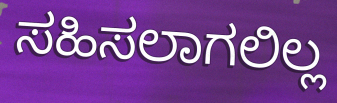
ಸಹಿಸಲಾಗಲಿಲ್ಲ